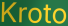
Kroto